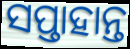
ସପ୍ତାହାନ୍ତ